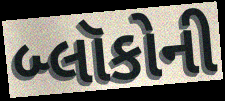
બ્લૉકોની